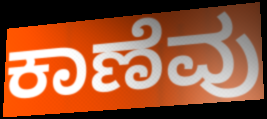
ಕಾಣೆವು